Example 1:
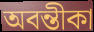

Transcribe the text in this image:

অবন্তীকা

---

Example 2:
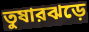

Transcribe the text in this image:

তুষারঝড়ে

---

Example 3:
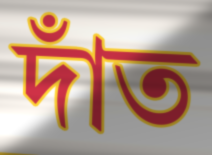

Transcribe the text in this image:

দাঁত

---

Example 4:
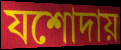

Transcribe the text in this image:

যশোদায়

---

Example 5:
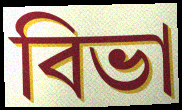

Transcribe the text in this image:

বিভা